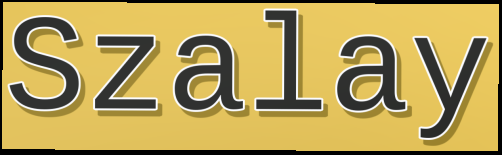
Szalay